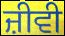
ਜ਼ੀਵੀ